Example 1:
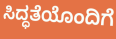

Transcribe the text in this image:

ಸಿದ್ಧತೆಯೊಂದಿಗೆ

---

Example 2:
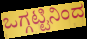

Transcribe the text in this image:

ಒಗ್ಗಟ್ಟಿನಿಂದ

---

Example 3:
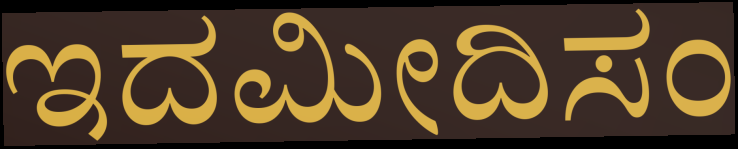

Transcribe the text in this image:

ಇದಮೀದಿಸಂ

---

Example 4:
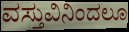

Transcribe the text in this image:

ವಸ್ತುವಿನಿಂದಲೂ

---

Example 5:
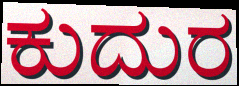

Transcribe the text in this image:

ಕುದುರ